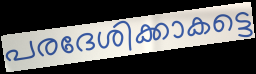
പരദേശിക്കാകട്ടെ